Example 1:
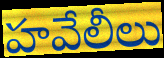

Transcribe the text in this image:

హవేలీలు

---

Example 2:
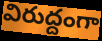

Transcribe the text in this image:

విరుద్దంగా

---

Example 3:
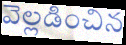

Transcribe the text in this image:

వెల్లడించిన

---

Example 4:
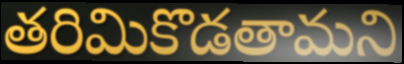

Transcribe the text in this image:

తరిమికొడతామని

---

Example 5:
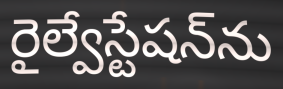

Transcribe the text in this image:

రైల్వేస్టేషన్‌ను